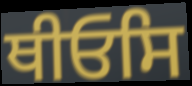
ਥੀਓਸਿ